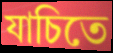
যাচিতে